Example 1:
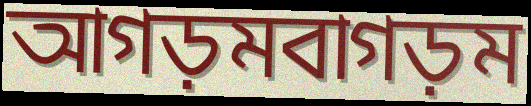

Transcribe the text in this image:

আগড়মবাগড়ম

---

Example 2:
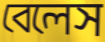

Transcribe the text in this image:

বেলেস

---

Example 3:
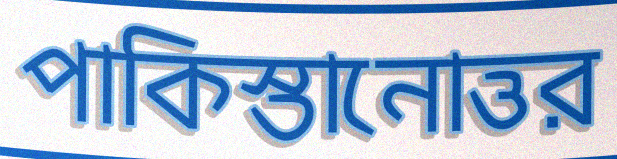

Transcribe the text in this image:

পাকিস্তানোত্তর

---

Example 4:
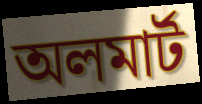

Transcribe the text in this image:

অলমার্ট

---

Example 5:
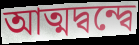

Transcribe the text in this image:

আত্মদ্বন্দ্বে